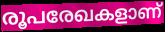
രൂപരേഖകളാണ്